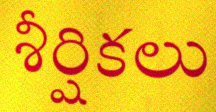
శీర్షికలు